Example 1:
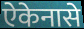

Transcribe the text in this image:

ऐकेनासे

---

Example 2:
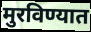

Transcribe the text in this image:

मुरविण्यात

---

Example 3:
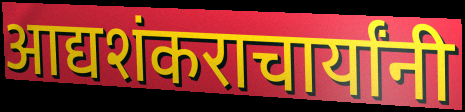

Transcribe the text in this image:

आद्यशंकराचार्यांनी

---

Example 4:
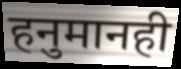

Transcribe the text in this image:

हनुमानही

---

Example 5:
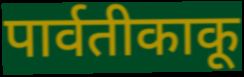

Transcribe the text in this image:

पार्वतीकाकू